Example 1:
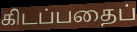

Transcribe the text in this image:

கிடப்பதைப்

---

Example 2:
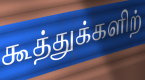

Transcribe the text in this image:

கூத்துக்களிற்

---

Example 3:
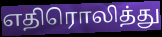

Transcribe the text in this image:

எதிரொலித்து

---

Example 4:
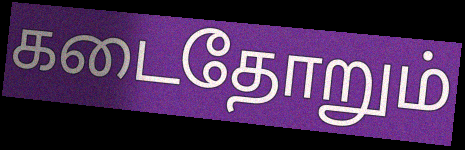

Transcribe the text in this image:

கடைதோறும்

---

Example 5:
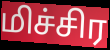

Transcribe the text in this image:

மிச்சிர